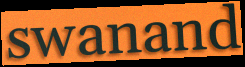
swanand